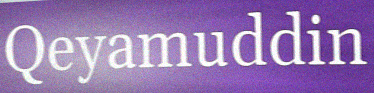
Qeyamuddin